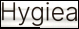
Hygiea